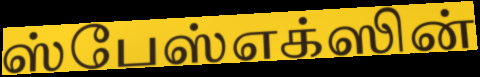
ஸ்பேஸ்எக்ஸின்